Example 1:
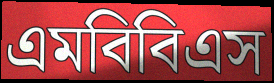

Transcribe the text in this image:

এমবিবিএস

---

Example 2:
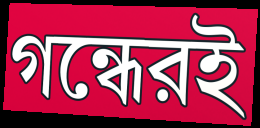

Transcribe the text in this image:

গন্ধেরই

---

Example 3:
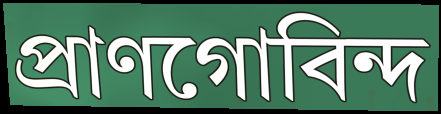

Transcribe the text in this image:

প্রাণগোবিন্দ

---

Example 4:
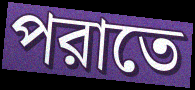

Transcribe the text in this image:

পরাতে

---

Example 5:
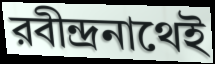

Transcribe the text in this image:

রবীন্দ্রনাথেই